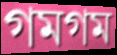
গমগম